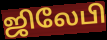
ஜிலேபி